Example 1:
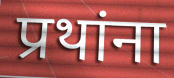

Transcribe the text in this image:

प्रथांना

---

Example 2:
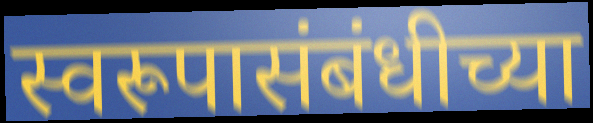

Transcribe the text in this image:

स्वरूपासंबंधीच्या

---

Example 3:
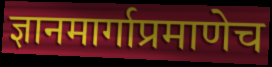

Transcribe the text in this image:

ज्ञानमार्गाप्रमाणेच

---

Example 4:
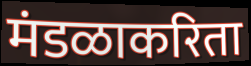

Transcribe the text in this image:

मंडळाकरिता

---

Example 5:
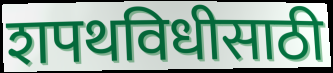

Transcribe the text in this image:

शपथविधीसाठी